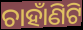
ଚାହାଁଣିଟି